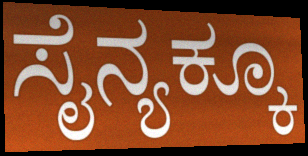
ಸೈನ್ಯಕ್ಕೂ